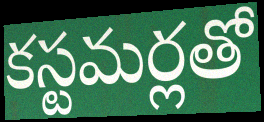
కస్టమర్లతో